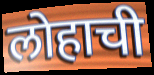
लोहाची